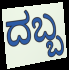
ದಬ್ಬ